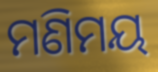
ମଣିମୟ